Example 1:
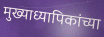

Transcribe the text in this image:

मुख्याध्यापिकांच्या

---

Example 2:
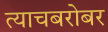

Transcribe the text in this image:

त्याचबरोबर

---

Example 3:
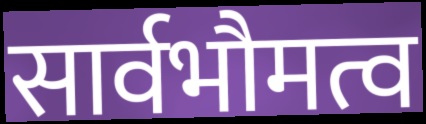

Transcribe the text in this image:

सार्वभौमत्व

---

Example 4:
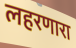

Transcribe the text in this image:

लहरणारा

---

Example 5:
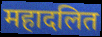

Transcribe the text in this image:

महादलित